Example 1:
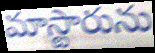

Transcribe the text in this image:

మాస్టారును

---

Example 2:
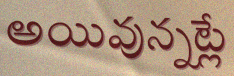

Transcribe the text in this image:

అయివున్నట్లే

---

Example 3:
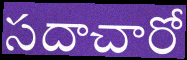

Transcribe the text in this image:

సదాచారో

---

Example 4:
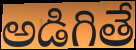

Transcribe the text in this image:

అడిగితే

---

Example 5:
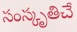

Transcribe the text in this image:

సంస్కృతిచే